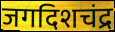
जगदिशचंद्र